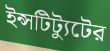
ইন্সটিট্যুটের